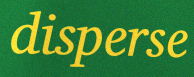
disperse